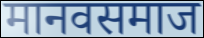
मानवसमाज